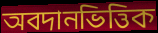
অবদানভিত্তিক